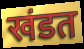
खंडत